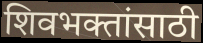
शिवभक्तांसाठी